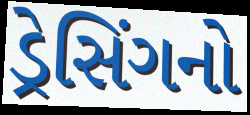
ડ્રેસિંગનો